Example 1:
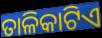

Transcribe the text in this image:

ତାଳିକାଟିଏ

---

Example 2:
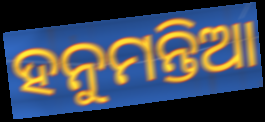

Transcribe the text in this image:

ହନୁମନ୍ତିଆ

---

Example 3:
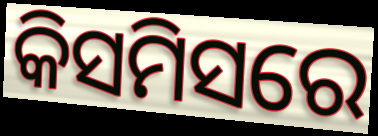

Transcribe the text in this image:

କିସମିସରେ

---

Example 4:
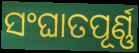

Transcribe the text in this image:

ସଂଘାତପୂର୍ଣ୍ଣ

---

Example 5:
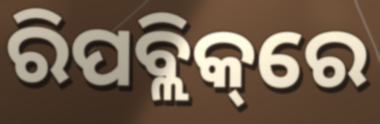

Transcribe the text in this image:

ରିପବ୍ଲିକ୍‌ରେ